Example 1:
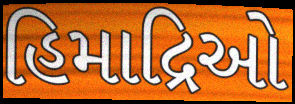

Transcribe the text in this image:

હિમાદ્રિઓ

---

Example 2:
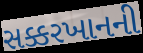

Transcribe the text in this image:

સક્કરખાનની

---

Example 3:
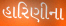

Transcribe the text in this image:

હારિણીના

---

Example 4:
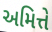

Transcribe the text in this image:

અમિત્તે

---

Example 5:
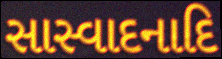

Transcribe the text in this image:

સાસ્વાદનાદિ